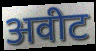
अवीट